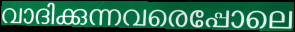
വാദിക്കുന്നവരെപ്പോലെ